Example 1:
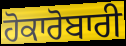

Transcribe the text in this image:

ਹੋਕਾਰੋਬਾਰੀ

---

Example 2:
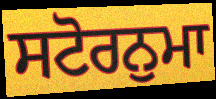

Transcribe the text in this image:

ਸਟੋਰਨੁਮਾ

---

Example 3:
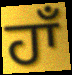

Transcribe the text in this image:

ਹਾਁ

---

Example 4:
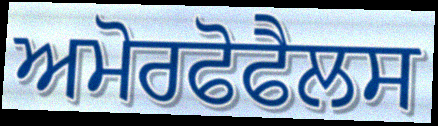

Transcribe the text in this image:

ਅਮੋਰਫੋਫੈਲਸ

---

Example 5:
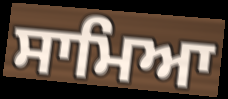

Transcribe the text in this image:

ਸਾਮਿਆ